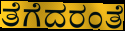
ತೆಗೆದರಂತೆ